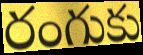
రంగుకు